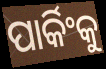
ପାର୍କିଂକୁ